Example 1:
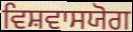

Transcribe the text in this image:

ਵਿਸ਼ਵਾਸਯੋਗ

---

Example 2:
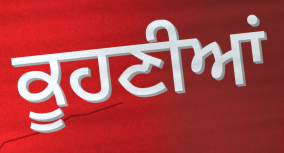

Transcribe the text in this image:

ਕੂਹਣੀਆਂ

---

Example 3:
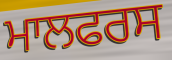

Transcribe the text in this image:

ਮਾਲਫਰਸ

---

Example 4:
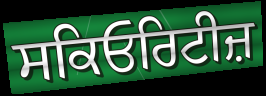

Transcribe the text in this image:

ਸਕਿਓਰਿਟੀਜ਼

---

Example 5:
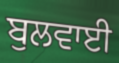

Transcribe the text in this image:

ਬੁਲਵਾਈ